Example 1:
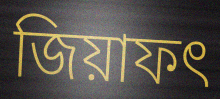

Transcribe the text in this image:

জিয়াফৎ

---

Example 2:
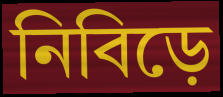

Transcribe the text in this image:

নিবিড়ে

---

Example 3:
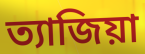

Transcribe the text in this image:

ত্যাজিয়া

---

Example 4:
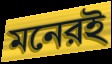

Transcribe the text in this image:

মনেরই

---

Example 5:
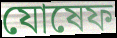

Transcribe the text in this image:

যোষেফ